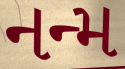
નન્મ